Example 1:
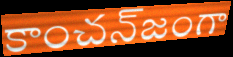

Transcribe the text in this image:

కాంచన్‌జంగా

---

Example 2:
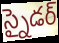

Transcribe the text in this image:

స్నైడర్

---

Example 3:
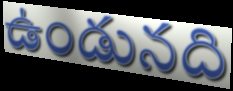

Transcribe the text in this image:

ఉండునది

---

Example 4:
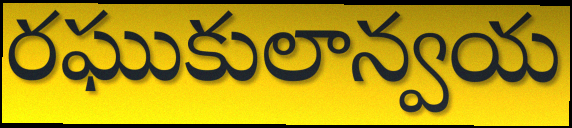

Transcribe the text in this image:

రఘుకులాన్వయ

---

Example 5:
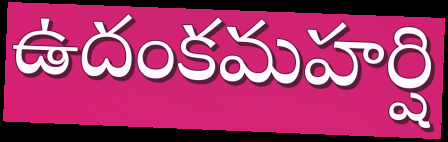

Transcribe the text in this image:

ఉదంకమహర్షి